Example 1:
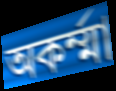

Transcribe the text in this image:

অকর্ম্মা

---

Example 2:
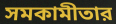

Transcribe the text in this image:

সমকামীতার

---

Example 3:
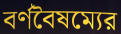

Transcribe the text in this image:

বর্ণবৈষম্যের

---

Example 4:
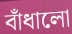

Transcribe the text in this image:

বাঁধালো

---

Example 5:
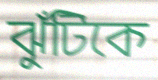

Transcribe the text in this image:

ঝুঁটিকে